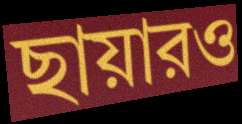
ছায়ারও